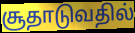
சூதாடுவதில்